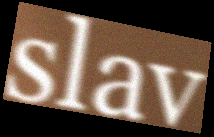
slav